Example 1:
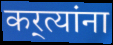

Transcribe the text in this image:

कर्त्यांना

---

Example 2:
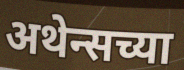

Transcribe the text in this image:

अथेन्सच्या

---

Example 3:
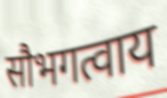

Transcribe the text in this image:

सौभगत्वाय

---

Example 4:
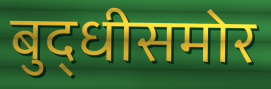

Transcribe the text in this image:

बुद्धीसमोर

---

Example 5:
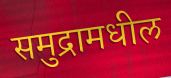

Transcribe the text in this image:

समुद्रामधील